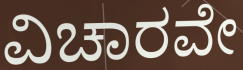
ವಿಚಾರವೇ